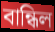
বান্ধিল